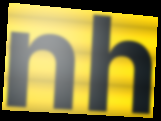
nh